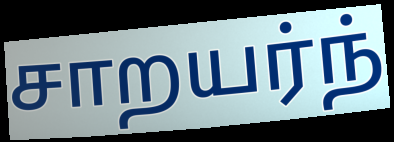
சாறயர்ந்